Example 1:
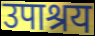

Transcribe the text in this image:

उपाश्रय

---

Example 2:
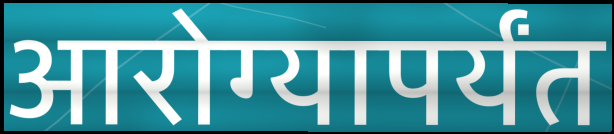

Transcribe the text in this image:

आरोग्यापर्यंत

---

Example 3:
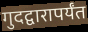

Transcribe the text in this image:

गुदद्वारापर्यंत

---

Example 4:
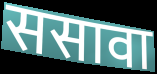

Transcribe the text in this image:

ससावा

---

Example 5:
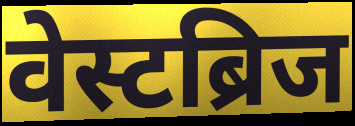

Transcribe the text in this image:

वेस्टब्रिज